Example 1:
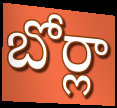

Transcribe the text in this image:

బోర్లా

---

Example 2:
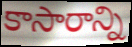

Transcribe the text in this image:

కాసారాన్ని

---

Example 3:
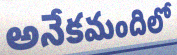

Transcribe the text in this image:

అనేకమందిలో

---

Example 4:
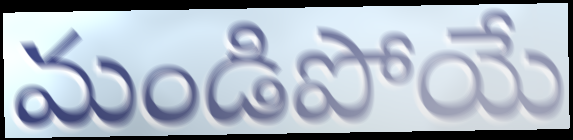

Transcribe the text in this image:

మండిపోయే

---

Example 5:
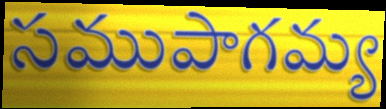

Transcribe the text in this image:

సముపాగమ్య